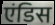
एंडिस